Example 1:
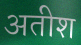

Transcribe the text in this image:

अतीश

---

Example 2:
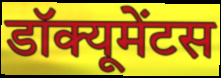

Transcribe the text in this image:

डॉक्यूमेंटस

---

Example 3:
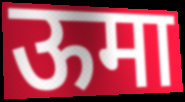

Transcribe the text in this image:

ऊमा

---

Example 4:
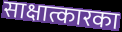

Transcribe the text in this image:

साक्षात्कारका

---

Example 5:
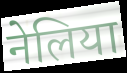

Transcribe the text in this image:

नेलिया